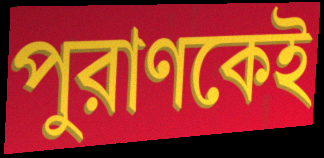
পুরাণকেই